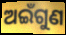
ଅଇଁଗୁଣ